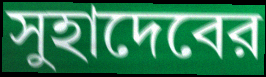
সুহাদেবের